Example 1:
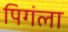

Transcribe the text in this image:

पिगंला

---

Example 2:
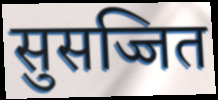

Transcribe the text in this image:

सुसज्जित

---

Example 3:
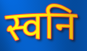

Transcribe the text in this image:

स्वनि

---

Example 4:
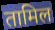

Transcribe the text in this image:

तामिल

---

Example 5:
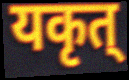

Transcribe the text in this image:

यकृत्